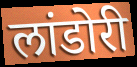
लांडोरी